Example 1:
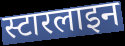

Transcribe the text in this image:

स्टारलाइन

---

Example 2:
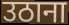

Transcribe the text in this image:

उठाना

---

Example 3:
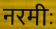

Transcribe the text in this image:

नरमीः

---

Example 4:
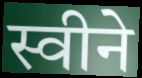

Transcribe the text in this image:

स्वीने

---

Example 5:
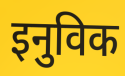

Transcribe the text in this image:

इनुविक